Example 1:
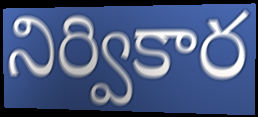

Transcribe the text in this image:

నిర్వికార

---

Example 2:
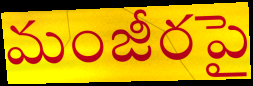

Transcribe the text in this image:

మంజీరపై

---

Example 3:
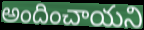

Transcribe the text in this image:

అందించాయని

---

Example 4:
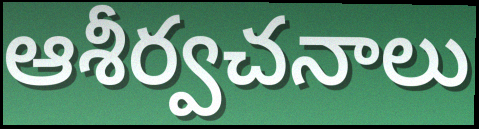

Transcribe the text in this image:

ఆశీర్వచనాలు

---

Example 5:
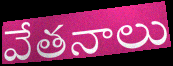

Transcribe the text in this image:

వేతనాలు